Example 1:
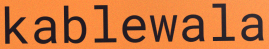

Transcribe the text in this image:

kablewala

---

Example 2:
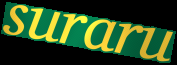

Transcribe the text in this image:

suraru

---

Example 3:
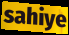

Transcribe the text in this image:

sahiye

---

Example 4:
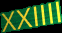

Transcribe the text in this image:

XXIIII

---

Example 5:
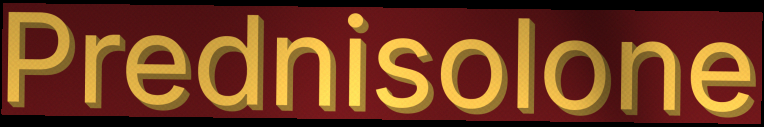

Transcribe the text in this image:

Prednisolone